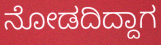
ನೋಡದಿದ್ದಾಗ